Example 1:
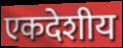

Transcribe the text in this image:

एकदेशीय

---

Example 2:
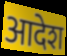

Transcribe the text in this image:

आदेश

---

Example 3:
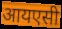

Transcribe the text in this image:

आयएसी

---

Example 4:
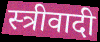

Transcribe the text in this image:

स्त्रीवादी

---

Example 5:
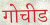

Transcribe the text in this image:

गोचीड